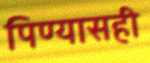
पिण्यासही